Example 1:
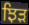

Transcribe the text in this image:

ਝਿੜ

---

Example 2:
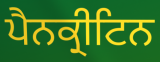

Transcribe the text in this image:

ਪੈਨਕ੍ਰੀਟਿਨ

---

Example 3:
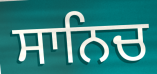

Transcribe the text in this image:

ਸਾਨਿਚ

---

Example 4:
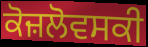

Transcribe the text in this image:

ਕੋਜ਼ਲੋਵਸਕੀ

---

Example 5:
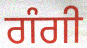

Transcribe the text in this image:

ਗੰਗੀ